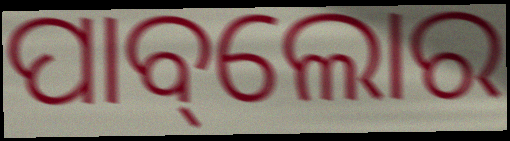
ପାବ୍‌ଲୋର